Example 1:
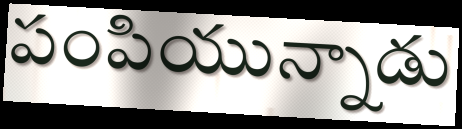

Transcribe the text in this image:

పంపియున్నాడు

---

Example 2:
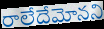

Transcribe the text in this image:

రాలేదేమోనని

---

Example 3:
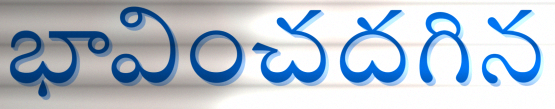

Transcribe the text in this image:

భావించదగిన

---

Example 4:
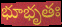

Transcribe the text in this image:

భూభృతః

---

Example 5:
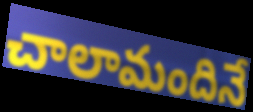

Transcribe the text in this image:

చాలామందినే